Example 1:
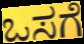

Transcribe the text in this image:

ಒಸಗೆ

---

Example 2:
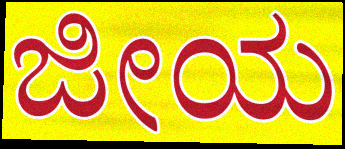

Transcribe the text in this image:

ಜೀಯ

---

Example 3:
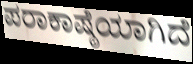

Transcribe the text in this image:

ಪರಾಕಾಷ್ಠೆಯಾಗಿದೆ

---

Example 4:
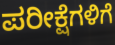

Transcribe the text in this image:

ಪರೀಕ್ಷೆಗಳಿಗೆ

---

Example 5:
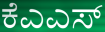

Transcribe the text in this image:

ಕೆಎಎಸ್